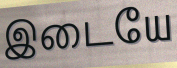
இடையே